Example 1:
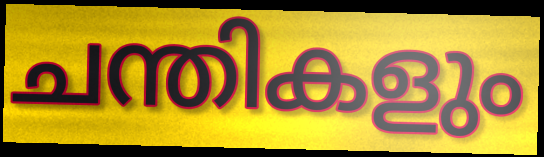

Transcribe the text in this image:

ചന്തികളും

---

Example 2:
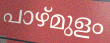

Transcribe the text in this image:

പാഴ്മുളം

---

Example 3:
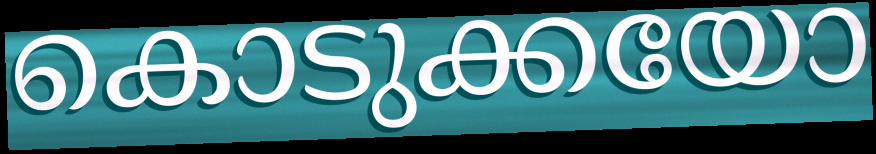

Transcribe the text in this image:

കൊടുക്കയോ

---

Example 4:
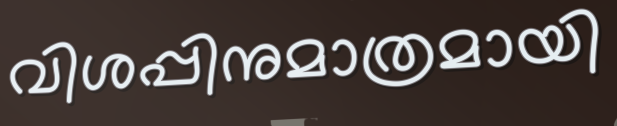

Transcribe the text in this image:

വിശപ്പിനുമാത്രമായി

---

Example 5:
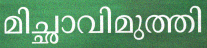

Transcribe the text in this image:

മിച്ഛാവിമുത്തി